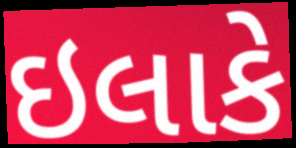
ઇલાકે